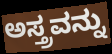
ಅಸ್ತ್ರವನ್ನು